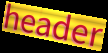
header